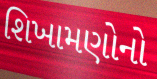
શિખામણોનો